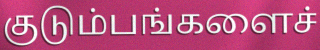
குடும்பங்களைச்